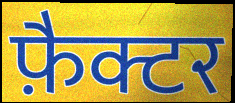
फ़ैक्टर